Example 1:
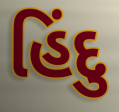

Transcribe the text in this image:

હિંદુ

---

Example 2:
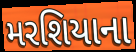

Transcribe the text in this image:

મરશિયાના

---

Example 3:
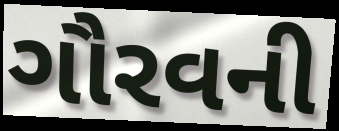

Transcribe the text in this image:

ગૌરવની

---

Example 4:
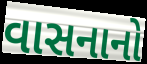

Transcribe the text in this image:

વાસનાનો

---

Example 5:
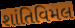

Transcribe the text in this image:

શાંતિવિમલ